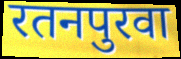
रतनपुरवा